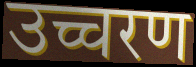
उच्चरण